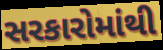
સરકારોમાંથી